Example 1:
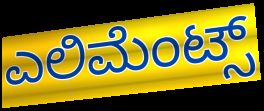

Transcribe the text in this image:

ಎಲಿಮೆಂಟ್ಸ್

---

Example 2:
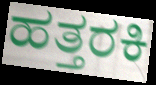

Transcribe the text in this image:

ಹತ್ತರಕಿ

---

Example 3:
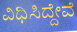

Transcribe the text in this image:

ವಿಧಿಸಿದ್ದೇವೆ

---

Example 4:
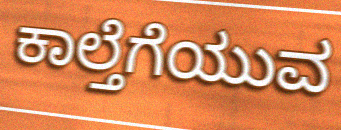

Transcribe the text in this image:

ಕಾಲ್ತೆಗೆಯುವ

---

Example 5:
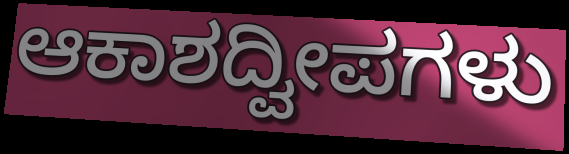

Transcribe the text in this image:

ಆಕಾಶದ್ವೀಪಗಳು